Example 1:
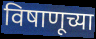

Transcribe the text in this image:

विषाणूच्या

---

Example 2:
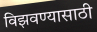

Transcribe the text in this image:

विझवण्यासाठी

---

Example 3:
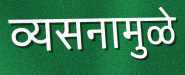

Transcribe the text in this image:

व्यसनामुळे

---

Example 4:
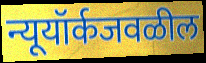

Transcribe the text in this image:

न्यूयॉर्कजवळील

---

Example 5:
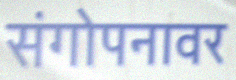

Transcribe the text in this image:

संगोपनावर